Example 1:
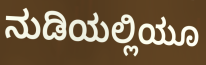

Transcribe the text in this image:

ನುಡಿಯಲ್ಲಿಯೂ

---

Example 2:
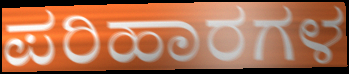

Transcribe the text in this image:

ಪರಿಹಾರಗಳ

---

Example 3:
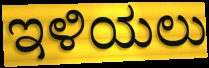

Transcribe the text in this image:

ಇಳಿಯಲು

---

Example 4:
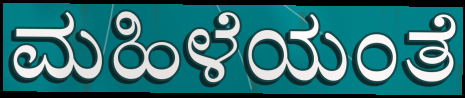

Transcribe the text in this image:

ಮಹಿಳೆಯಂತೆ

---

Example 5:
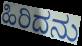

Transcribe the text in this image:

ಹಿರಿದನು